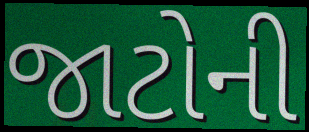
જાટોની